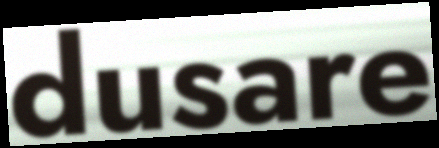
dusare